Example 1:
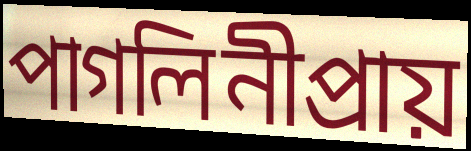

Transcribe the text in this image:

পাগলিনীপ্রায়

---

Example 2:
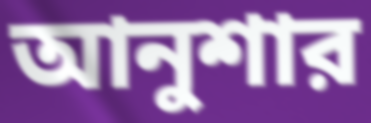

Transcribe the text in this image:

আনুশার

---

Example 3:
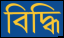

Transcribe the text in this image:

বিদ্ধি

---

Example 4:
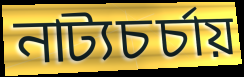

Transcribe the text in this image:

নাট্যচর্চায়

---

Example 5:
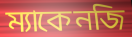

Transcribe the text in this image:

ম্যাকেনজি